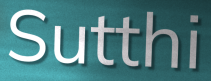
Sutthi